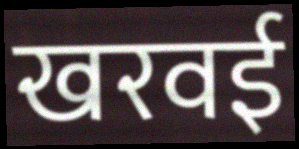
खरवई